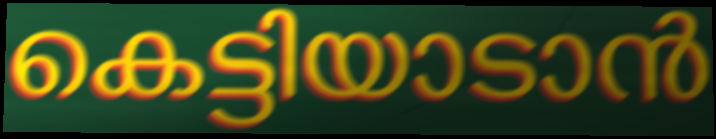
കെട്ടിയാടാൻ